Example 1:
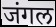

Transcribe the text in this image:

जंगल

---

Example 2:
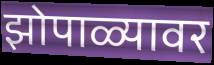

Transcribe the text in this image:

झोपाळ्यावर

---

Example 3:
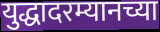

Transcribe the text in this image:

युद्धादरम्यानच्या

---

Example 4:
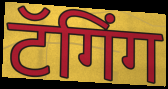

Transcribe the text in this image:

टॅगिंग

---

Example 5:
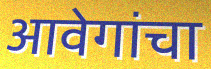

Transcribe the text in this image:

आवेगांचा